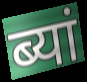
ब्यां